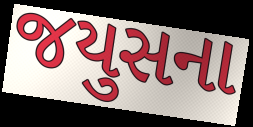
જયુસના